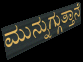
ಮುನ್ನುಗ್ಗುತ್ತಾನೆ